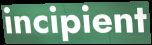
incipient